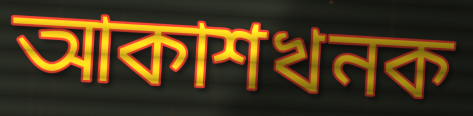
আকাশখনক